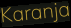
Karanja